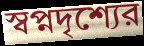
স্বপ্নদৃশ্যের